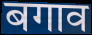
बगाव